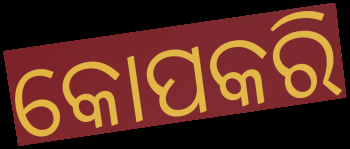
କୋପକରି